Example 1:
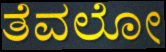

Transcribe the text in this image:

ತೆವಲೋ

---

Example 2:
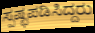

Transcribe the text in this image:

ಸ್ಪಷ್ಟಪಡಿಸಿದ್ದರು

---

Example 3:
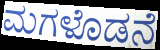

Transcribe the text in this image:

ಮಗಳೊಡನೆ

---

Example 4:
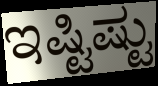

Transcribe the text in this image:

ಇಷ್ಟಿಷ್ಟು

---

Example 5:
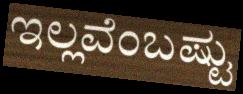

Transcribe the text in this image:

ಇಲ್ಲವೆಂಬಷ್ಟು